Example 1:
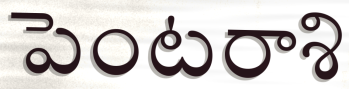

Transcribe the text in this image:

పెంటరాశి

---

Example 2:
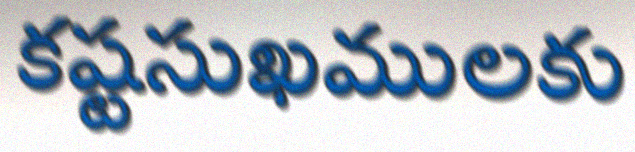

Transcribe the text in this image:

కష్టసుఖములకు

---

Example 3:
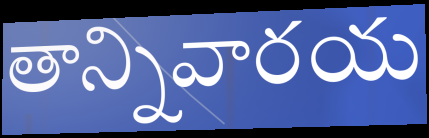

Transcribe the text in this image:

తాన్నివారయ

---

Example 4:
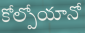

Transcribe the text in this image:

కోల్పోయానో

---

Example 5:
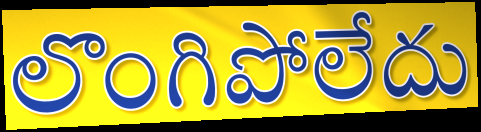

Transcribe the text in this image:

లొంగిపోలేదు